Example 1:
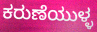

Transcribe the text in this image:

ಕರುಣೆಯುಳ್ಳ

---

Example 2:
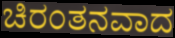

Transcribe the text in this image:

ಚಿರಂತನವಾದ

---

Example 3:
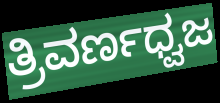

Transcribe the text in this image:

ತ್ರಿವರ್ಣಧ್ವಜ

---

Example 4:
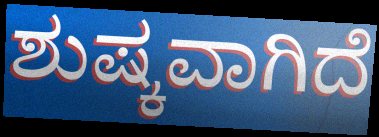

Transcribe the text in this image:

ಶುಷ್ಕವಾಗಿದೆ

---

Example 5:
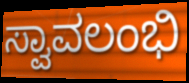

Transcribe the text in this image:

ಸ್ವಾವಲಂಭಿ